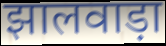
झालवाड़ा